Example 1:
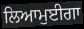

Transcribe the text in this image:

ਲਿਆਮੁਈਗਾ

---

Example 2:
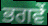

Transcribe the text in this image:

ਭਗਵੇਂ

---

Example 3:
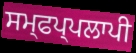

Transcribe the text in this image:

ਸਮ੍ਫਪ੍ਪਲਾਪੀ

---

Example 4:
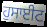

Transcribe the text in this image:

ਹੁਸਾਈਟ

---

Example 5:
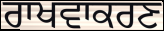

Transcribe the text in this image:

ਰਾਖਵਾਕਰਣ